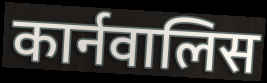
कार्नवालिस